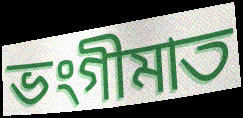
ভংগীমাত